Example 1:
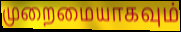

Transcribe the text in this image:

முறைமையாகவும்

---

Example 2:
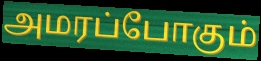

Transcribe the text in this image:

அமரப்போகும்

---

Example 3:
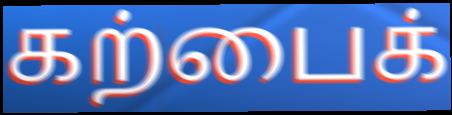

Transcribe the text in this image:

கற்பைக்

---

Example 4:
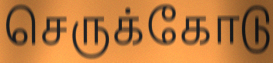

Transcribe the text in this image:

செருக்கோடு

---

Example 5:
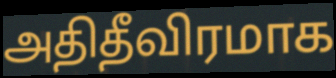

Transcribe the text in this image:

அதிதீவிரமாக